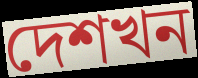
দেশখন